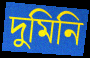
দুমিনি